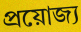
প্ৰয়োজ্য়